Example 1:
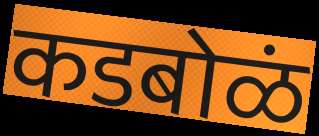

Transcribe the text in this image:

कडबोळं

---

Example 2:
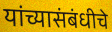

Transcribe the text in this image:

यांच्यासंबंधीचे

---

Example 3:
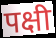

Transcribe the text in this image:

पक्षी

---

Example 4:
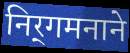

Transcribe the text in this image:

निर्गमनाने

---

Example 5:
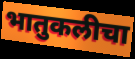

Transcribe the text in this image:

भातुकलीचा